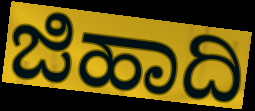
ಜಿಹಾದಿ